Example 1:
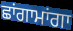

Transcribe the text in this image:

ਛਾਂਗਾਮਾਂਗਾ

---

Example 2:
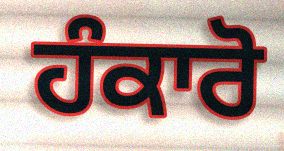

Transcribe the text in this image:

ਹੰਕਾਰੋ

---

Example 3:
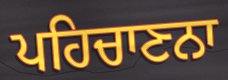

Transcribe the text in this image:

ਪਹਿਚਾਣਨਾ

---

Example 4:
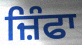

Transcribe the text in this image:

ਜ਼ਿੰਫਾ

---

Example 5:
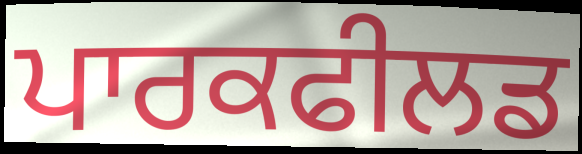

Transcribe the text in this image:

ਪਾਰਕਫੀਲਡ